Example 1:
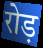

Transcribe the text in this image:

रोड़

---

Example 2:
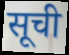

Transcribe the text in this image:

सूची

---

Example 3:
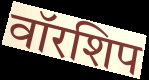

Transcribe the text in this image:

वॉरशिप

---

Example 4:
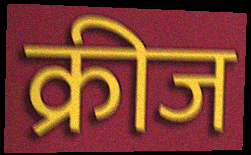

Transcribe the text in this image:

क्रीज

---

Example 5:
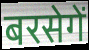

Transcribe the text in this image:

बरसेगें